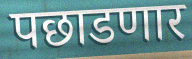
पछाडणार